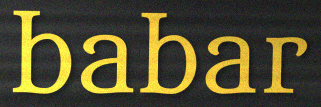
babar